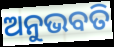
ଅନୁଭବତି